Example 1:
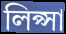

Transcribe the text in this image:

লিপ্সা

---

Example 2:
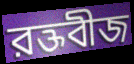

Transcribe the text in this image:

রক্তবীজ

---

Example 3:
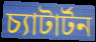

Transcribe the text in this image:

চ্যাটার্টন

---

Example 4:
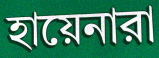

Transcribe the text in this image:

হায়েনারা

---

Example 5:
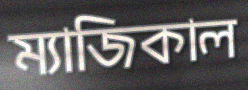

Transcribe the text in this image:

ম্যাজিকাল